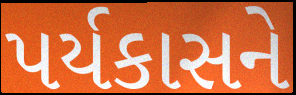
પર્યકાસને